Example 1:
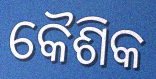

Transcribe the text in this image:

କୈଶିକ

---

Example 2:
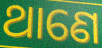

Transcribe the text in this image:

ଥାଣେ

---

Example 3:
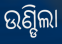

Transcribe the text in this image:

ଉଣ୍ଡିଲା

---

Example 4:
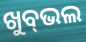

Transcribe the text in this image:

ଖୁବ୍‌ଭଲ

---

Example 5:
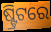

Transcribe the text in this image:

ଷ୍ଟ୍ରିଟରେ